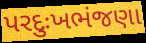
પરદુઃખભંજણા